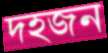
দহজন